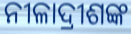
ନୀଳାଦ୍ରୀଶଙ୍କ